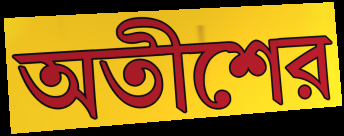
অতীশের